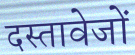
दस्तावेजों